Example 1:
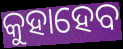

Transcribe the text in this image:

କୁହାହେବ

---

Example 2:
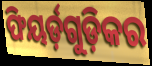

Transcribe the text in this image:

ଫିୟର୍ଡ଼ଗୁଡ଼ିକର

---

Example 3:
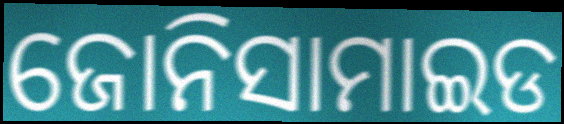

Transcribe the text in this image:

ଜୋନିସାମାଇଡ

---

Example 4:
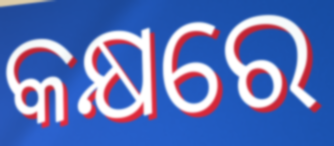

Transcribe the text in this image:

କକ୍ଷରେ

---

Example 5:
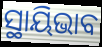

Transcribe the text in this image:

ସ୍ଥାୟିଭାବ